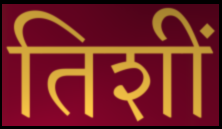
तिशीं